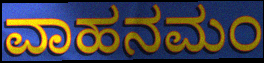
ವಾಹನಮಂ